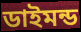
ডাইমন্ড